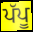
ਪੱਪੂ